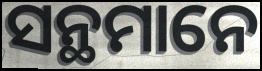
ସନ୍ଥମାନେ